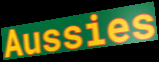
Aussies